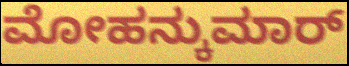
ಮೋಹನ್ಕುಮಾರ್